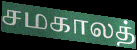
சமகாலத்